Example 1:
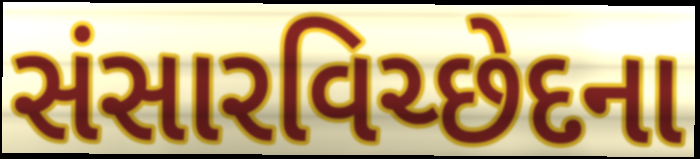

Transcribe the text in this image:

સંસારવિચ્છેદના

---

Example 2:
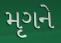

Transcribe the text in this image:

મૃગને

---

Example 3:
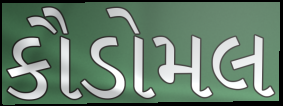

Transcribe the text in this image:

કૌડોમલ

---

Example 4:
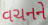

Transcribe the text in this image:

વચનને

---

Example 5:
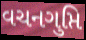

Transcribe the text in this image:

વચનગુપ્તિ